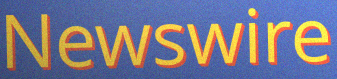
Newswire